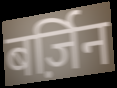
बर्ज़िन